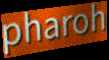
pharoh